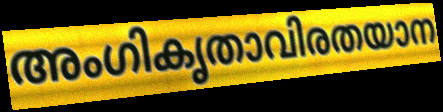
അംഗികൃതാവിരതയാന